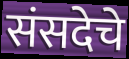
संसदेचे